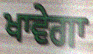
ਖਾਵੇਗਾ